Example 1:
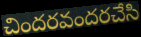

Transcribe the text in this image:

చిందరవందరచేసి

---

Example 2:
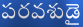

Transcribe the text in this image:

పరవశుడై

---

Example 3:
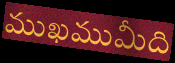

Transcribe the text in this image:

ముఖముమీది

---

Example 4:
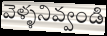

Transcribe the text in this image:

వెళ్ళనివ్వండి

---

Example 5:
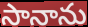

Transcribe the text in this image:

సానాను